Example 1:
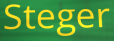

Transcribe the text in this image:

Steger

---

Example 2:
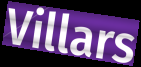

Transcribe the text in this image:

Villars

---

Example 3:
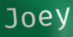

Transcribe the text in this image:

Joey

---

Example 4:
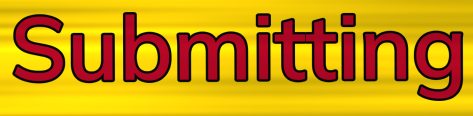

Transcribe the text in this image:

Submitting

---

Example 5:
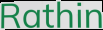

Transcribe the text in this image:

Rathin